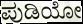
ಪುಡಿಯೋ